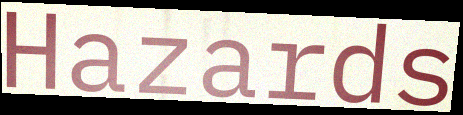
Hazards